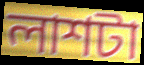
লাশটা